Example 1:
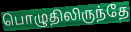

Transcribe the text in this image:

பொழுதிலிருந்தே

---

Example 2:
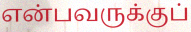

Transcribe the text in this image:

என்பவருக்குப்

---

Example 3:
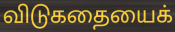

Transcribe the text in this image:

விடுகதையைக்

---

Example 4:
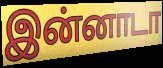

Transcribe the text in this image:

இன்னாடா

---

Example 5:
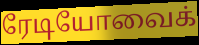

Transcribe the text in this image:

ரேடியோவைக்